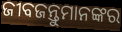
ଜୀବଜନ୍ତୁମାନଙ୍କର